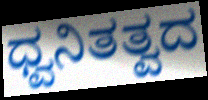
ಧ್ವನಿತತ್ವದ